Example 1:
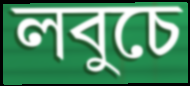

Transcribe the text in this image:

লবুচে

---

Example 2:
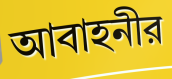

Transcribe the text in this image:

আবাহনীর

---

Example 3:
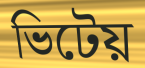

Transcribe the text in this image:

ভিটেয়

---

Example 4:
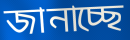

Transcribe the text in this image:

জানাচ্ছে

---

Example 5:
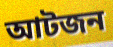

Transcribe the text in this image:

আটজন